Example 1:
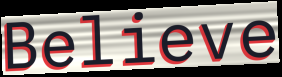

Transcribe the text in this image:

Believe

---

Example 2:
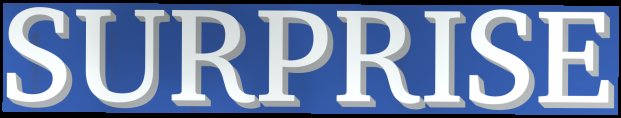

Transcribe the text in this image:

SURPRISE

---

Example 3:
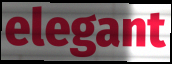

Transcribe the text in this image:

elegant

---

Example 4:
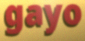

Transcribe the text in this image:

gayo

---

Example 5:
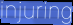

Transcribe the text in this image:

injuring